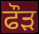
ਫੌਡ਼